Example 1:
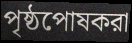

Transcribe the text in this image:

পৃষ্ঠপোষকরা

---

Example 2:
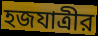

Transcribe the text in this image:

হজযাত্রীর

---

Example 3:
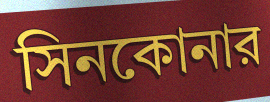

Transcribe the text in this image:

সিনকোনার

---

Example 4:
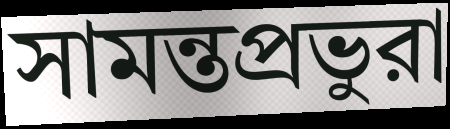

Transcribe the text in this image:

সামন্তপ্রভুরা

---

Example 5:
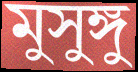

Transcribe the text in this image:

মুসুঙ্গু